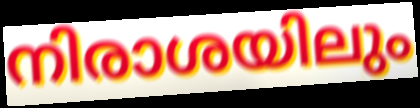
നിരാശയിലും